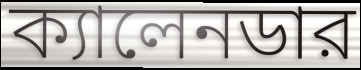
ক্যালেনডার